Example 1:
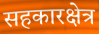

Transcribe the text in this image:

सहकारक्षेत्र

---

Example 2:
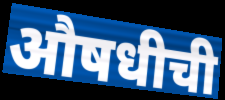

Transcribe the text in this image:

औषधीची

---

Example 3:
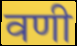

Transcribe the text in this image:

वणी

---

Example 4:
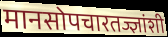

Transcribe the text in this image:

मानसोपचारतज्ज्ञांशी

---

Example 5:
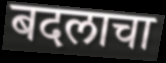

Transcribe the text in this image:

बदलाचा